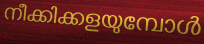
നീക്കിക്കളയുമ്പോൾ